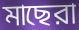
মাছেরা